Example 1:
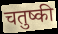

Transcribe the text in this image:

चतुष्की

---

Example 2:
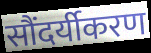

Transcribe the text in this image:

सौंदर्यीकरण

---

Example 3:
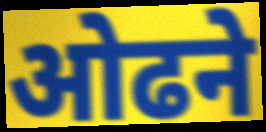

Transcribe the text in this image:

ओढने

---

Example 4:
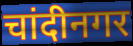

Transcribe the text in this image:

चांदीनगर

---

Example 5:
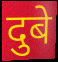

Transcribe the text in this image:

दुबे